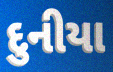
દુનીયા